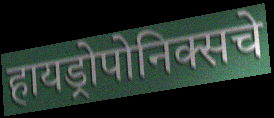
हायड्रोपोनिक्सचे